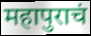
महापुराचं